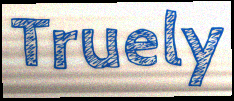
Truely